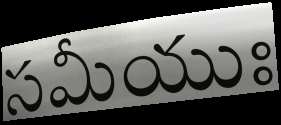
సమీయుః